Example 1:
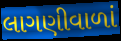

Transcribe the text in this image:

લાગણીવાળાં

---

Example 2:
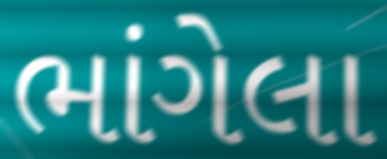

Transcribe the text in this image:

ભાંગેલા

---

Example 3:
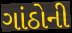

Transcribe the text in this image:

ગાંઠોની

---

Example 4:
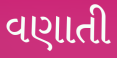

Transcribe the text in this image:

વણાતી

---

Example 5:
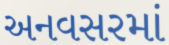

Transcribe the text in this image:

અનવસરમાં